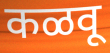
कळवू